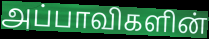
அப்பாவிகளின்